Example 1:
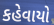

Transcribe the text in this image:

કહેવાયો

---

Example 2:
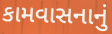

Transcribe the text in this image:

કામવાસનાનું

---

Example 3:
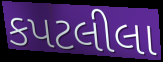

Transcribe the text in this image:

કપટલીલા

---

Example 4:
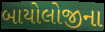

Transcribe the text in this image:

બાયોલોજીના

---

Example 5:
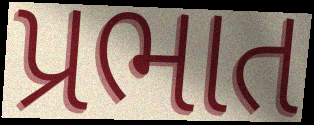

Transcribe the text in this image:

પ્રભાત